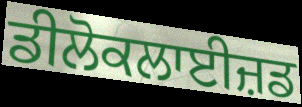
ਡੀਲੋਕਲਾਈਜ਼ਡ